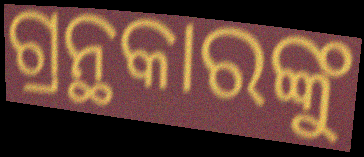
ଗ୍ରନ୍ଥକାରଙ୍କୁ